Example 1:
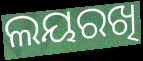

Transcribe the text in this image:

ଲୟରଖି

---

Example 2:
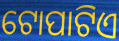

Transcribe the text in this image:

ଟୋପାଟିଏ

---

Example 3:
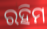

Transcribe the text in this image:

ରହିମ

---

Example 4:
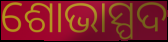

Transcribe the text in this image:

ଶୋଭାସ୍ପଦ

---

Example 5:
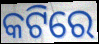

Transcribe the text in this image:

କଟିରେ